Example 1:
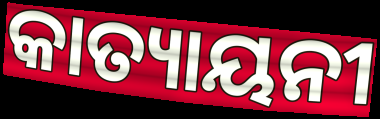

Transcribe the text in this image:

କାତ୍ୟାୟନୀ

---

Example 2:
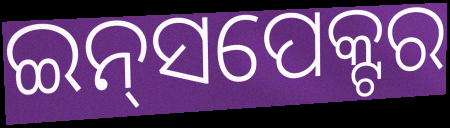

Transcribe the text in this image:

ଇନ୍‍ସପେକ୍ଟର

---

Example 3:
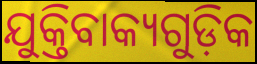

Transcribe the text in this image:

ଯୁକ୍ତିବାକ୍ୟଗୁଡ଼ିକ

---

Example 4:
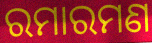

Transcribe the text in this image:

ରମାରମଣ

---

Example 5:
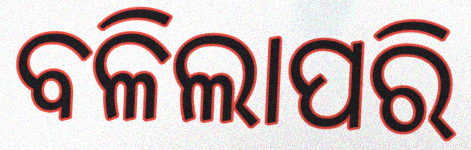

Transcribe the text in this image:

ବଳିଲାପରି